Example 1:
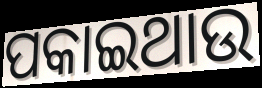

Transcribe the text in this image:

ପକାଇଥାଉ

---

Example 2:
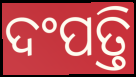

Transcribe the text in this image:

ଦଂପତ୍ତି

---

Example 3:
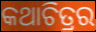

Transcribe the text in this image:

କଥାଚିତ୍ରର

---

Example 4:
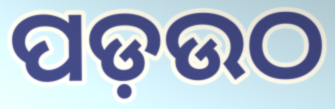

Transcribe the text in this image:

ପଡ଼ଉଠ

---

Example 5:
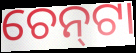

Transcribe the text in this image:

ଚେନ୍‌ଟା